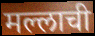
मल्लाची